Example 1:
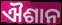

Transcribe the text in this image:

ଐଶାନ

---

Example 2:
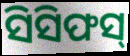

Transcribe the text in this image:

ସିସିଫସ୍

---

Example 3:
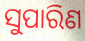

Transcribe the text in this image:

ସୁପାରିଣ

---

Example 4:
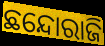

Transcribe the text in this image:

ଛନ୍ଦୋରାଜି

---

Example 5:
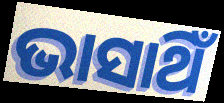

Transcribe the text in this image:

ଭାସାଥିଁ